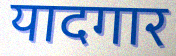
यादगार